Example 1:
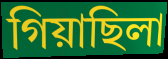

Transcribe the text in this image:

গিয়াছিলা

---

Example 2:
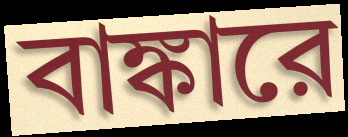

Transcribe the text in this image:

বাঙ্কারে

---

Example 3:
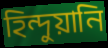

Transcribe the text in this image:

হিন্দুয়ানি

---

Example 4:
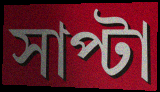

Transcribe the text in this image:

সাপ্টা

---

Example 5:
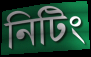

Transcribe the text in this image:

নিটিং